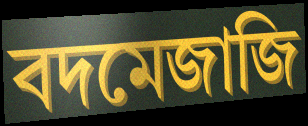
বদমেজাজি